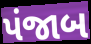
પંજાબ